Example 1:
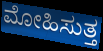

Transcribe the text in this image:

ಮೋಹಿಸುತ್ತ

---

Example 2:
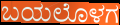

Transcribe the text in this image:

ಬಯಲೊಳಗ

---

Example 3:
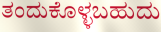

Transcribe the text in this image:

ತಂದುಕೊಳ್ಳಬಹುದು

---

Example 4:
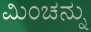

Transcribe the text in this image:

ಮಿಂಚನ್ನು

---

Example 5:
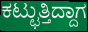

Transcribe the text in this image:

ಕಟ್ಟುತ್ತಿದ್ದಾಗ